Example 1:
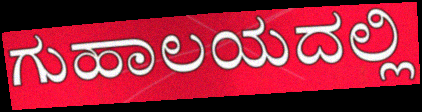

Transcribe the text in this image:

ಗುಹಾಲಯದಲ್ಲಿ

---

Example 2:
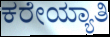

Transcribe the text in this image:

ಕರೇಯ್ಯಾತಿ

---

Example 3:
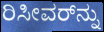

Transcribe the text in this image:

ರಿಸೀವರ್‌ನ್ನು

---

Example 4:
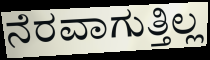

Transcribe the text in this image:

ನೆರವಾಗುತ್ತಿಲ್ಲ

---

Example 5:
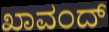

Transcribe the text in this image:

ಖಾವಂದ್